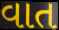
વાત